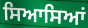
ਸਿਆਸਿਆਂ